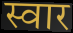
स्वार